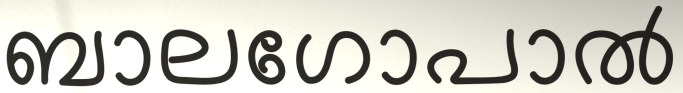
ബാലഗോപാൽ